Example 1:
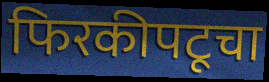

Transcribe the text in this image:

फिरकीपटूचा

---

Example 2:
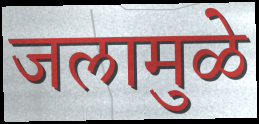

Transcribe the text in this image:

जलामुळे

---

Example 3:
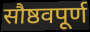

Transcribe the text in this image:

सौष्ठवपूर्ण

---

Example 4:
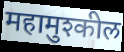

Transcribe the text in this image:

महामुश्कील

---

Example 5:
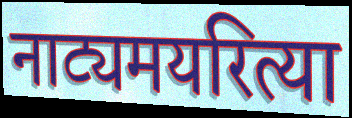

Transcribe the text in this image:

नाट्यमयरित्या